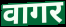
वागर